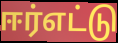
ஈர்எட்டு